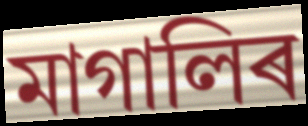
মাগালিৰ